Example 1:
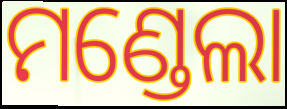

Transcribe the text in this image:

ମଣ୍ଡେଲା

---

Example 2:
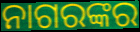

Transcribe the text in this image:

ନାଗରଙ୍କର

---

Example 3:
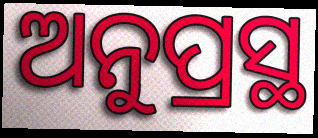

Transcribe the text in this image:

ଅନୁପ୍ରସ୍ଥ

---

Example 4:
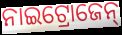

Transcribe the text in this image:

ନାଇଟ୍ରୋଜେନ୍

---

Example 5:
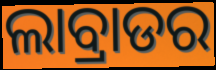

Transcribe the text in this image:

ଲାବ୍ରାଡର